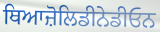
ਥਿਆਜ਼ੋਲਿਡੀਨੇਡੀਓਨ